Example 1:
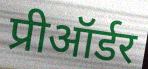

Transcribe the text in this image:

प्रीऑर्डर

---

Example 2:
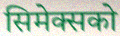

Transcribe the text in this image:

सिमेक्सको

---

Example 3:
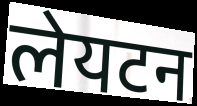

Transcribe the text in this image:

लेयटन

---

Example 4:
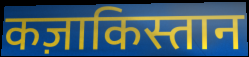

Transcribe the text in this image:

कज़ाकिस्तान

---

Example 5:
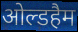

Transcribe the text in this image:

ओल्डहैम